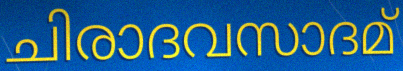
ചിരാദവസാദമ്